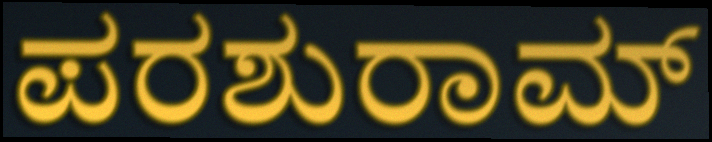
ಪರಶುರಾಮ್